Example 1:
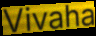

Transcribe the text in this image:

Vivaha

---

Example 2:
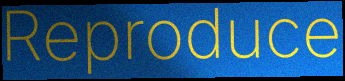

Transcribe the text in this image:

Reproduce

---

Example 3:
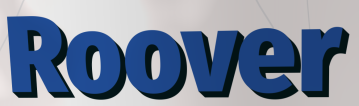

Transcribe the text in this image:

Roover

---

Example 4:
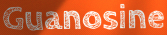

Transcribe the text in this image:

Guanosine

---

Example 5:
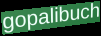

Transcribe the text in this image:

gopalibuch